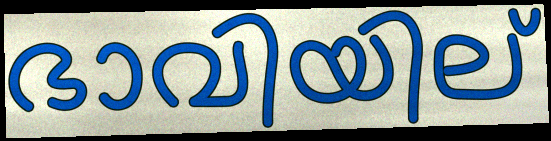
ഭാവിയില്